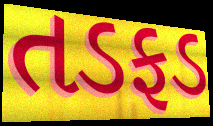
તડફડ